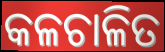
କଳଚାଳିତ